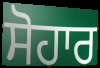
ਸੋਹਾਰ